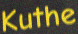
Kuthe